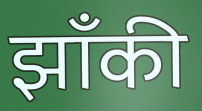
झाँकी